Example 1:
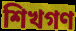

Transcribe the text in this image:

শিখগণ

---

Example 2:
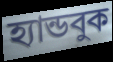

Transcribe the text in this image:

হ্যান্ডবুক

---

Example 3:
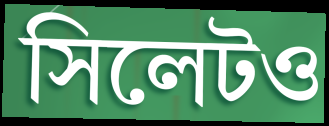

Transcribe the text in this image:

সিলেটও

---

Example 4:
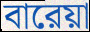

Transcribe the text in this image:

বারেয়া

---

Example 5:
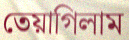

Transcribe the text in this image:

তেয়াগিলাম